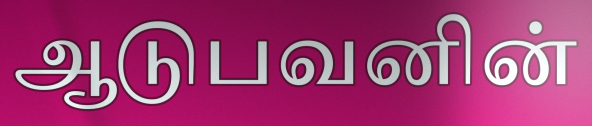
ஆடுபவனின்